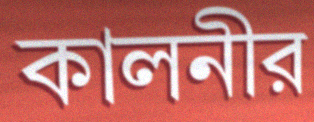
কালনীর